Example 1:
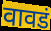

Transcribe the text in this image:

वावडं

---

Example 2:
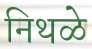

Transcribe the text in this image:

निथळे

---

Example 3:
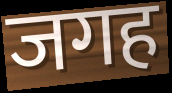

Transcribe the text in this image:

जगह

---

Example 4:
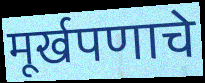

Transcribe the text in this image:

मूर्खपणाचे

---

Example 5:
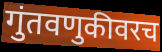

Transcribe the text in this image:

गुंतवणुकीवरच